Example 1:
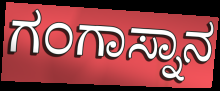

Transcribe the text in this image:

ಗಂಗಾಸ್ನಾನ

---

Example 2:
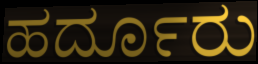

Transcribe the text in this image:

ಹರ್ದೂರು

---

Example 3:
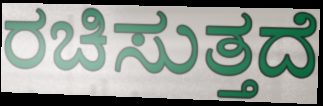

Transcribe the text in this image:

ರಚಿಸುತ್ತದೆ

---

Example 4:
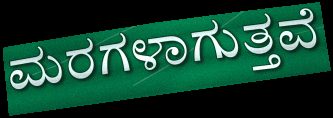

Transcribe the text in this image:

ಮರಗಳಾಗುತ್ತವೆ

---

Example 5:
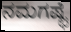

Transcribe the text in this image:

ನಮಗಷ್ಟೆ